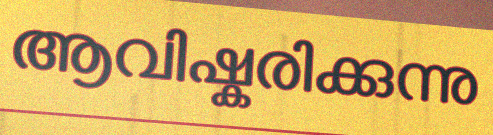
ആവിഷ്കരിക്കുന്നു